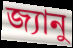
জ্যানু